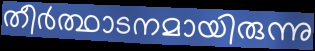
തീർത്ഥാടനമായിരുന്നു